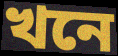
খনে